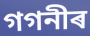
গগনীৰ